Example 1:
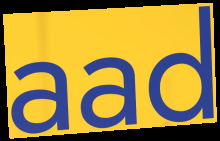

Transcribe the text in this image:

aad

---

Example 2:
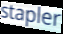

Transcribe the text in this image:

stapler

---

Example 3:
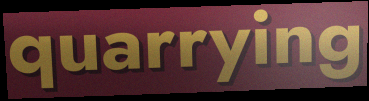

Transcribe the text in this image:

quarrying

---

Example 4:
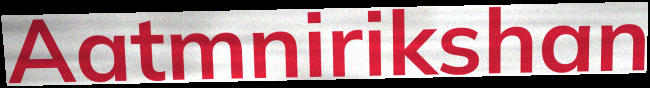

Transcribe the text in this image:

Aatmnirikshan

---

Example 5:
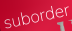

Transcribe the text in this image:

suborder